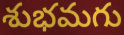
శుభమగు